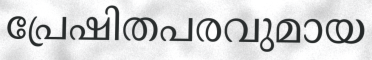
പ്രേഷിതപരവുമായ